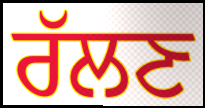
ਰੱਲਣ